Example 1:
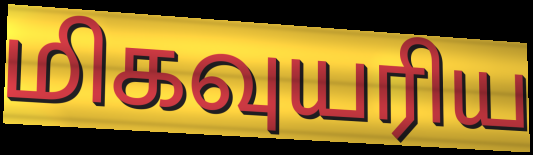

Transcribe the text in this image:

மிகவுயரிய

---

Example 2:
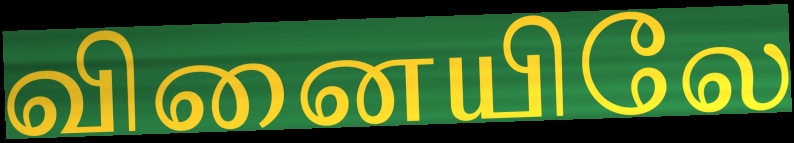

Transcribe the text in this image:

வினையிலே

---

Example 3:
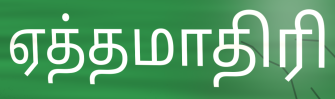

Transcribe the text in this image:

ஏத்தமாதிரி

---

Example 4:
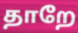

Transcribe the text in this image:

தாறே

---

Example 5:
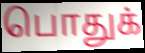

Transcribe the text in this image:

பொதுக்